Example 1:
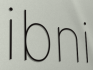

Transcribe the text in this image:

ibni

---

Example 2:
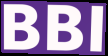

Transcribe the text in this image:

BBI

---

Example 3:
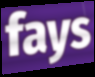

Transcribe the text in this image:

fays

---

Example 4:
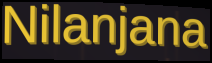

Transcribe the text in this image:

Nilanjana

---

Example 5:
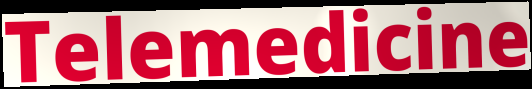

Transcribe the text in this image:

Telemedicine